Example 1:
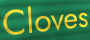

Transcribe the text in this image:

Cloves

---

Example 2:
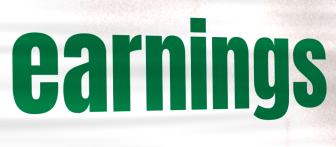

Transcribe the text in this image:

earnings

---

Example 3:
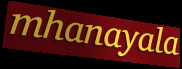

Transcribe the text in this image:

mhanayala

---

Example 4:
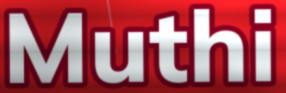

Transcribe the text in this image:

Muthi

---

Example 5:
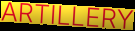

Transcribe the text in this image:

ARTILLERY